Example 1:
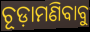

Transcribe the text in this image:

ଚୂଡ଼ାମଣିବାବୁ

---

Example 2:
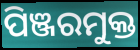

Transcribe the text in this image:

ପିଞ୍ଜରମୁକ୍ତ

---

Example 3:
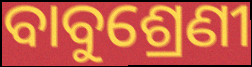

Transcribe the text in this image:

ବାବୁଶ୍ରେଣୀ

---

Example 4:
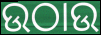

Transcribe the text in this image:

ଉଠାଉ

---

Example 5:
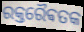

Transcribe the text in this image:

ରକ୍ତରୈଵତକ